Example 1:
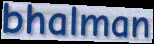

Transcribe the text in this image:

bhalman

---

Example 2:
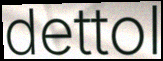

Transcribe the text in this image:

dettol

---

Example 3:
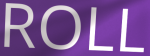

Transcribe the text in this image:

ROLL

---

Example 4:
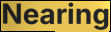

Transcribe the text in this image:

Nearing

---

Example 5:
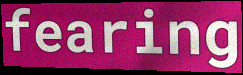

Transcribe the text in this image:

fearing